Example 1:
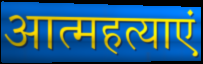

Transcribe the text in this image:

आत्महत्याएं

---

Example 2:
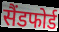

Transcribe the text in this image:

सैंडफोर्ड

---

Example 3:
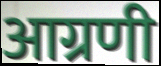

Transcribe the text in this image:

आग्रणी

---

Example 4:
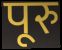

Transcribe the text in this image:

पूरु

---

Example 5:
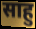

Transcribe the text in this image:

साहु